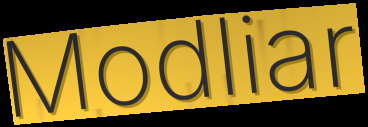
Modliar